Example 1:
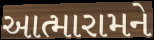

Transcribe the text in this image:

આત્મારામને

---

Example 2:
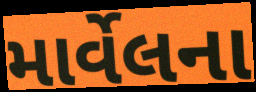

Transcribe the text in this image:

માર્વેલના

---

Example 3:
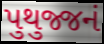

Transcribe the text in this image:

પુથુજ્જનં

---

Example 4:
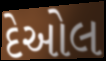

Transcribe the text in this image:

દેઓલ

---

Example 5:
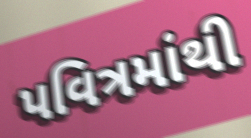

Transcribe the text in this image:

પવિત્રમાંથી